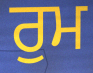
ਰੁਮ